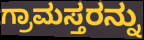
ಗ್ರಾಮಸ್ತರನ್ನು